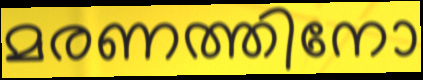
മരണത്തിനോ